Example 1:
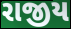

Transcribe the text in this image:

રાજીય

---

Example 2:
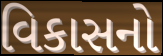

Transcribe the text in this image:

વિકાસનો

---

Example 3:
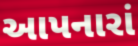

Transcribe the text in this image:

આપનારાં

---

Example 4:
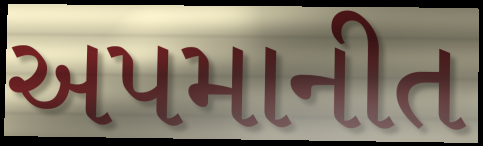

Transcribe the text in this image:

અપમાનીત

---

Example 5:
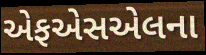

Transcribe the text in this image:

એફએસએલના